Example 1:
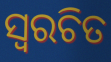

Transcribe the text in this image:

ସ୍ୱରଚିତ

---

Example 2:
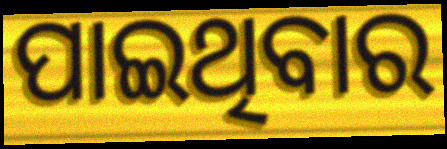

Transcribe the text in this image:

ପାଇଥିବାର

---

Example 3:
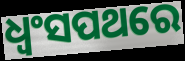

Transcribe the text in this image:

ଧ୍ବଂସପଥରେ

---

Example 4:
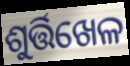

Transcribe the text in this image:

ଶୁର୍ତ୍ତିଖେଳ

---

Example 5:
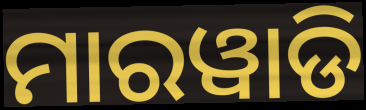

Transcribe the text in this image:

ମାରୱାଡି